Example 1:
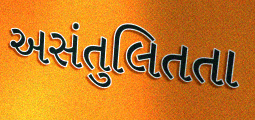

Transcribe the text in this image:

અસંતુલિતતા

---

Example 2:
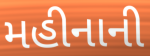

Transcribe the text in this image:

મહીનાની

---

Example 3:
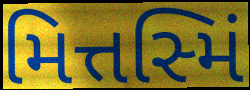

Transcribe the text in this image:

મિત્તસ્મિં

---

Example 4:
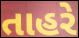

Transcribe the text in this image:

તાહરે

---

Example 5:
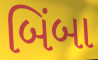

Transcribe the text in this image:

બિંબા